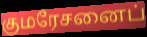
குமரேசனைப்